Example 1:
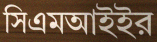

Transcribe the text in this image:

সিএমআইইর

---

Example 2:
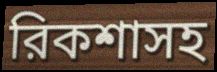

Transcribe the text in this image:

রিকশাসহ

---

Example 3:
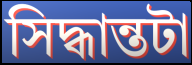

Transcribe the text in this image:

সিদ্ধান্তটা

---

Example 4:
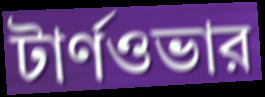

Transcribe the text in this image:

টার্ণওভার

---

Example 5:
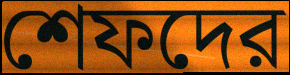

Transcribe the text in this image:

শেফদের